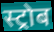
स्ट्रोब